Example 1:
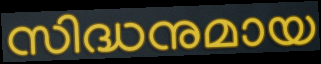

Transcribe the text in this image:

സിദ്ധനുമായ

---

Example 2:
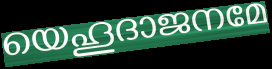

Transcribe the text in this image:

യെഹൂദാജനമേ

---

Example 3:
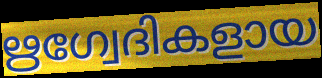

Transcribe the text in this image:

ഋഗ്വേദികളായ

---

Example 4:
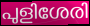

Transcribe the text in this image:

പുളിശേരി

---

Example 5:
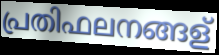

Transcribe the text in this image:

പ്രതിഫലനങ്ങള്